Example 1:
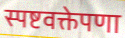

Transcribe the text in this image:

स्पष्टवक्तेपणा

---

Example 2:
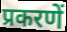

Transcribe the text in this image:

प्रकरणें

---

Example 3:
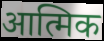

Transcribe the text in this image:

आत्मिक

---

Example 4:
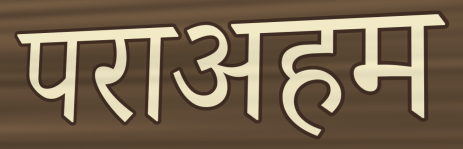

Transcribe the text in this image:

पराअहम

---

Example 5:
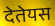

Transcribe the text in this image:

देतेयस